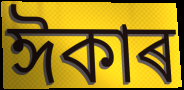
ঈকাৰ